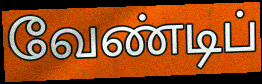
வேண்டிப்